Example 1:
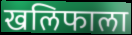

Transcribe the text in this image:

खलिफाला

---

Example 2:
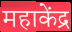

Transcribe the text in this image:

महाकेंद्र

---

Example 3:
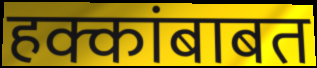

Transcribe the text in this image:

हक्कांबाबत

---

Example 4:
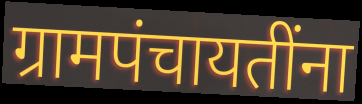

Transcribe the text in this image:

ग्रामपंचायतींना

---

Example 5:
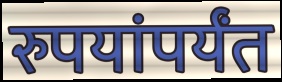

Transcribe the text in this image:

रुपयांपर्यंत